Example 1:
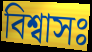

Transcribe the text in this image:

বিশ্বাসঃ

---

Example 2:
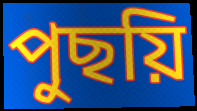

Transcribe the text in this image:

পুছয়ি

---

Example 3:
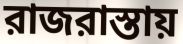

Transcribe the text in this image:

রাজরাস্তায়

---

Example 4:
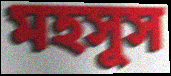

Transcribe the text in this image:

মহসুস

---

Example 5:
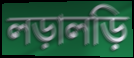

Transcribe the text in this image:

লড়ালড়ি